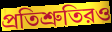
প্রতিশ্রুতিরও